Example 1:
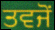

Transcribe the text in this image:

ਤਵਜੋਂ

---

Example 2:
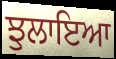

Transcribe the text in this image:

ਝੁਲਾਇਆ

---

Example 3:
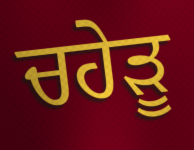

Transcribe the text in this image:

ਚਹੇੜੂ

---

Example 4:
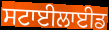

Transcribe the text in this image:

ਸਟਾਈਲਾਈਡ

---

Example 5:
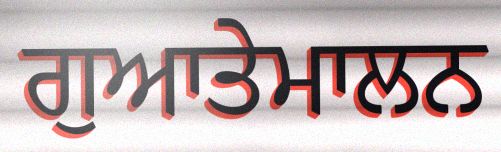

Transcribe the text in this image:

ਗੁਆਤੇਮਾਲਨ